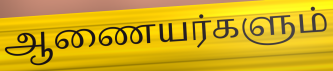
ஆணையர்களும்